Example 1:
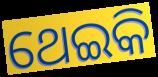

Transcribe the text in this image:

ଥେଇକି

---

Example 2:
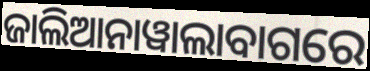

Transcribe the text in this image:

ଜାଲିଆନାୱାଲାବାଗରେ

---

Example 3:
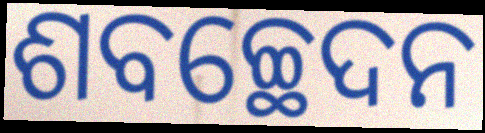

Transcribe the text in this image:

ଶବଚ୍ଛେଦନ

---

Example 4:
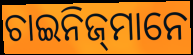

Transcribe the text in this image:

ଚାଇନିଜ୍‍ମାନେ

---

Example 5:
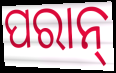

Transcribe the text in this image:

ପରାନ୍